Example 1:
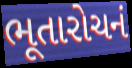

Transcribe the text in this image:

ભૂતારોચનં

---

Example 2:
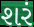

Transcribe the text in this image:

શરં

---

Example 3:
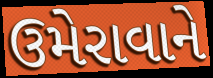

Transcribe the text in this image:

ઉમેરાવાને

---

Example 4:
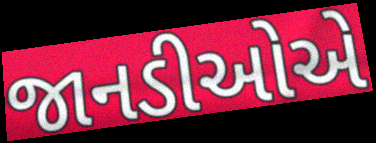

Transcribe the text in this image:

જાનડીઓએ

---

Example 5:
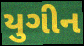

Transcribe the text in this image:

યુગીન